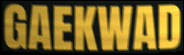
GAEKWAD